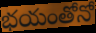
భయంతోనో